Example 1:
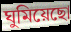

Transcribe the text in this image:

ঘুমিয়েছো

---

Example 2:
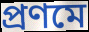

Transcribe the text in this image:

প্রণমে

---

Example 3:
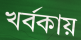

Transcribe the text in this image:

খর্বকায়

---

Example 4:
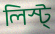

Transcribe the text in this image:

লিস্ট্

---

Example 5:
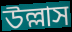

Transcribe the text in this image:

উল্লাস